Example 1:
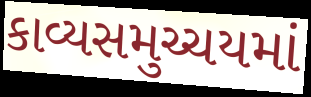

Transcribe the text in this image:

કાવ્યસમુચ્ચયમાં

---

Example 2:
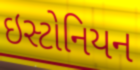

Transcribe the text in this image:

ઇસ્ટોનિયન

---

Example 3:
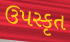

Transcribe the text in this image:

ઉપસ્કૃત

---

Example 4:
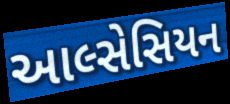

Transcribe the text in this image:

આલ્સેસિયન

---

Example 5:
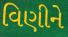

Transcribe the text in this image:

વિણીને